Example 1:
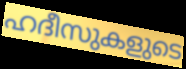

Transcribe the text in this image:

ഹദീസുകളുടെ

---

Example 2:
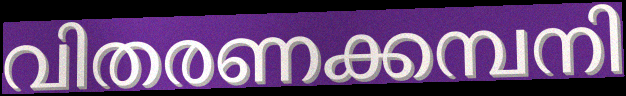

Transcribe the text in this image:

വിതരണക്കമ്പനി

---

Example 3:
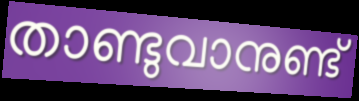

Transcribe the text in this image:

താണ്ടുവാനുണ്ട്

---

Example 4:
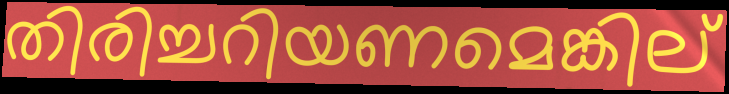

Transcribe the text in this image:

തിരിച്ചറിയണമെങ്കില്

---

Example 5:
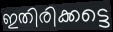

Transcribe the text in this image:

ഇതിരിക്കട്ടെ